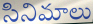
సినిమాలు